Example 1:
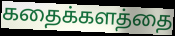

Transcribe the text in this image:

கதைக்களத்தை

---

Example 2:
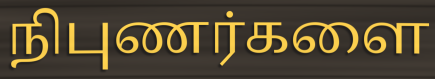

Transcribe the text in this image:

நிபுணர்களை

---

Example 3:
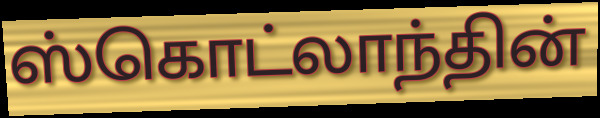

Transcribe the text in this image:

ஸ்கொட்லாந்தின்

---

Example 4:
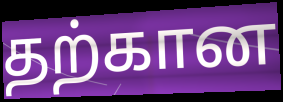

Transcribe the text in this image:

தற்கான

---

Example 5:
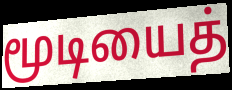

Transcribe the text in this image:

மூடியைத்